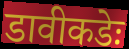
डावीकडेः